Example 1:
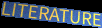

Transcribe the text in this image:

LITERATURE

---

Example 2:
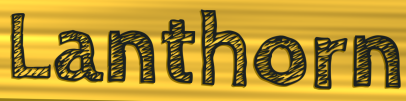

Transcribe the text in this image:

Lanthorn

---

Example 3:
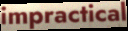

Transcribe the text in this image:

impractical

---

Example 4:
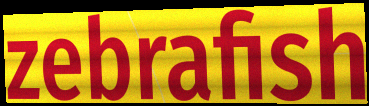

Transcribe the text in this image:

zebrafish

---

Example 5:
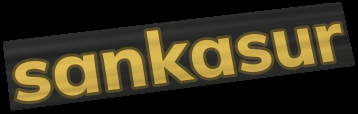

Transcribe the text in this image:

sankasur